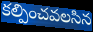
కల్పించవలసిన